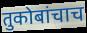
तुकोबांचाच